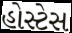
હોસ્ટેસ